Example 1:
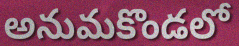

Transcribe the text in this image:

అనుమకొండలో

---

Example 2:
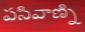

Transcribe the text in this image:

పసివాణ్ని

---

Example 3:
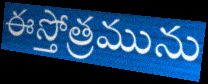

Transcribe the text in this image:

ఈస్తోత్రమును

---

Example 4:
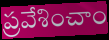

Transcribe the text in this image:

ప్రవేశించాం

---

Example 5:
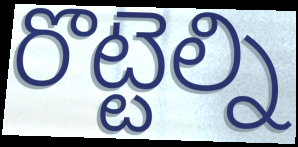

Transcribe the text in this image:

రొట్టెల్ని